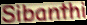
Sibanthi